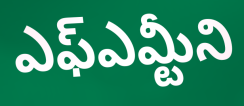
ఎఫ్ఎమ్టీని